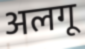
अलगू